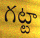
గట్టా